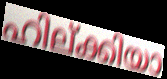
ഹില്ക്കിയാ